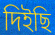
দিইছি